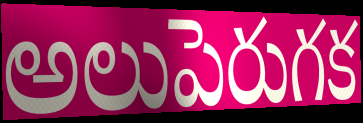
అలుపెరుగక